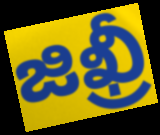
జిఖ్రీ